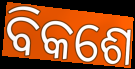
ବିକଶେ